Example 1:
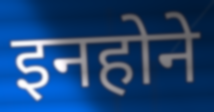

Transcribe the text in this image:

इनहोने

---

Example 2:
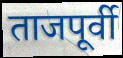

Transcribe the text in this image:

ताजपूर्वी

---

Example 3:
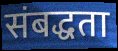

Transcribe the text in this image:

संबद्धता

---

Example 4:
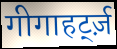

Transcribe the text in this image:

गीगाहर्ट्ज़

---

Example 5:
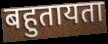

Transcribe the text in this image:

बहुतायता